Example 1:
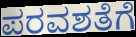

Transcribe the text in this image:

ಪರವಶತೆಗೆ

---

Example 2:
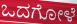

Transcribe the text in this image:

ಒದಗೋಳೆ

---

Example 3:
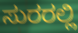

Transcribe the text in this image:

ಸುರರಲ್ಲಿ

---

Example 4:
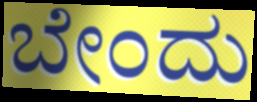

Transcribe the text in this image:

ಬೇಂದು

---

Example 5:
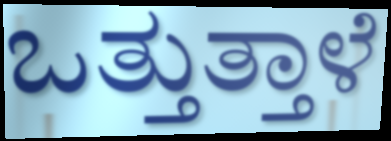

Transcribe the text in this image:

ಒತ್ತುತ್ತಾಳೆ